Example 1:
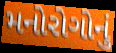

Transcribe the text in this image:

મનોરોગોનું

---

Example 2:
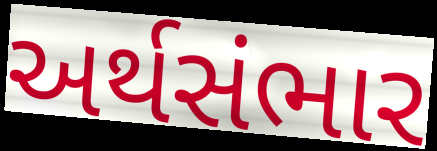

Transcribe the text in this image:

અર્થસંભાર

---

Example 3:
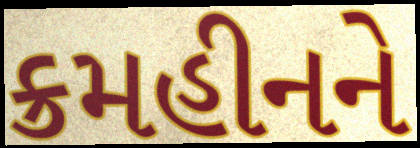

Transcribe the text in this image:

ક્રમહીનને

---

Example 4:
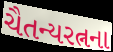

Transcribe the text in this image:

ચૈતન્યરત્નના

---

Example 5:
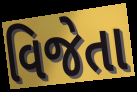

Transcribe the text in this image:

વિજેતા